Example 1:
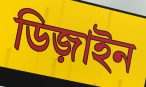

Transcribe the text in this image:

ডিজ়াইন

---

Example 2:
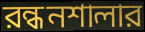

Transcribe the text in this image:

রন্ধনশালার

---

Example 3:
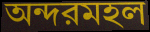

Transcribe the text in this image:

অন্দরমহল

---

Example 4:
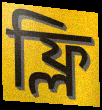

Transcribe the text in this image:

ফ্লি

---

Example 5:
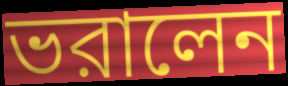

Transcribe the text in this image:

ভরালেন